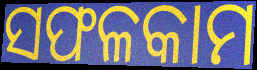
ସଫଳକାମ